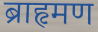
ब्राहृमण